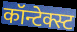
कॉन्टेक्स्ट